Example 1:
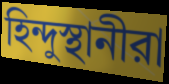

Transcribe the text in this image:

হিন্দুস্থানীরা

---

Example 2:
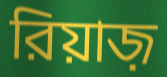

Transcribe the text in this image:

রিয়াজ়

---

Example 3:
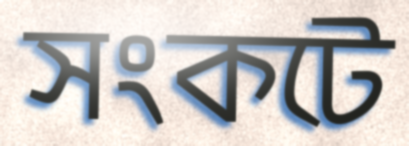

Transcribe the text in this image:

সংকটে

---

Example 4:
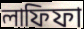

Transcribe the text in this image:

লাফিফা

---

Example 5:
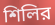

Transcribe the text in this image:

শিলির